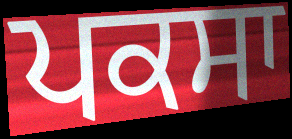
ਪਕਸਾ